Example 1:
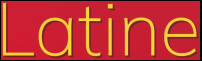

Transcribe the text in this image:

Latine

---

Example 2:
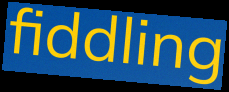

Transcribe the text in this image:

fiddling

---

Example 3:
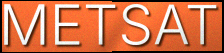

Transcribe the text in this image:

METSAT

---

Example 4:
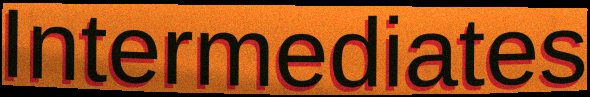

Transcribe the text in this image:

Intermediates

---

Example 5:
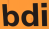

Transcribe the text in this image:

bdi